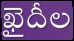
ఖైదీల